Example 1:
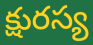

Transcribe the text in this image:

క్షురస్య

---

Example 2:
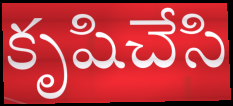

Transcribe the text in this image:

కృషిచేసి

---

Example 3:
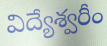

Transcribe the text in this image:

విద్యేశ్వరీం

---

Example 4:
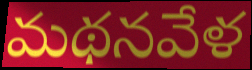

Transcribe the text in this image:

మథనవేళ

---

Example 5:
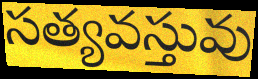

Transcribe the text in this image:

సత్యవస్తువు